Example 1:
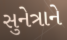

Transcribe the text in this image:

સુનેત્રાને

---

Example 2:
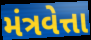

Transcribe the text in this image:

મંત્રવેત્તા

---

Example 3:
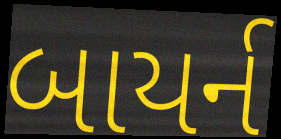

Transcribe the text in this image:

બાયર્ન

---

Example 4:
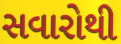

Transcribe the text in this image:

સવારોથી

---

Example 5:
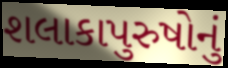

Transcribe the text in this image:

શલાકાપુરુષોનું